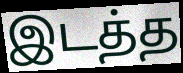
இடத்த